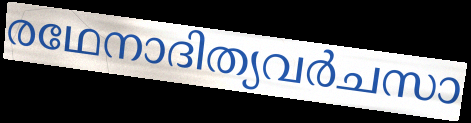
രഥേനാദിത്യവർചസാ